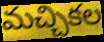
మచ్చికల